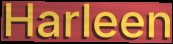
Harleen